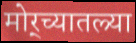
मोर्च्यातल्या